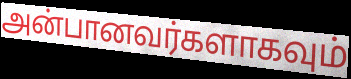
அன்பானவர்களாகவும்